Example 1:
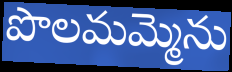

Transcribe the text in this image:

పొలమమ్మెను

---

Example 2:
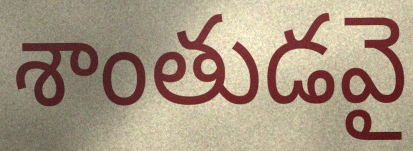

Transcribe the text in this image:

శాంతుడవై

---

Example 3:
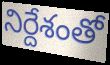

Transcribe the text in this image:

నిర్దేశంతో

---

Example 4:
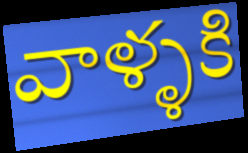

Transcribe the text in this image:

వాళ్ళకి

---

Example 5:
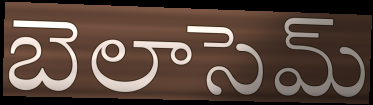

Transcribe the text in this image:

బెలాసెమ్